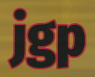
jgp